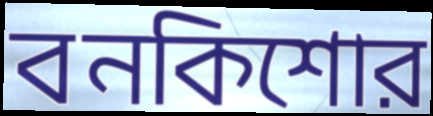
বনকিশোর